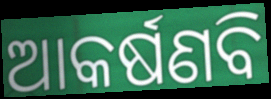
ଆକର୍ଷଣବି